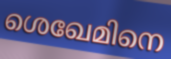
ശെഖേമിനെ